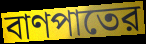
বাণপাতের